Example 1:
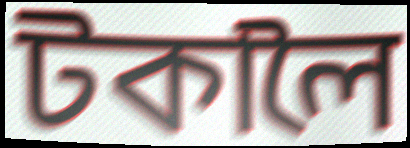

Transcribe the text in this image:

টকালৈ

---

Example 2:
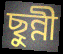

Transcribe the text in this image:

ছুন্নী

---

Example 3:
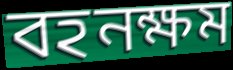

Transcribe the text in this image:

বহনক্ষম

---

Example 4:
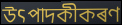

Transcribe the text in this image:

উৎপাদকীকৰণ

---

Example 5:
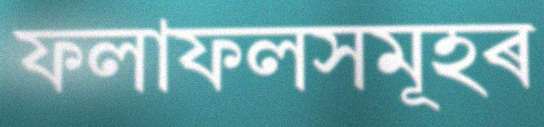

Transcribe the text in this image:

ফলাফলসমূহৰ